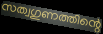
സത്വഗുണത്തിന്റെ